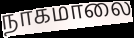
நாகமாலை